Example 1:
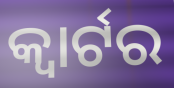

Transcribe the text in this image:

କ୍ଵାର୍ଟର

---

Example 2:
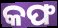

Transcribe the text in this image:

କଫ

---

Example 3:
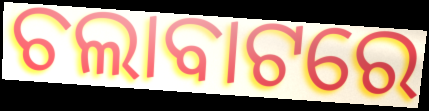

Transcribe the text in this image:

ଚଲାବାଟରେ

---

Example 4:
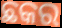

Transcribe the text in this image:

ଛକର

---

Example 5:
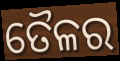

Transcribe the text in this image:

ତୈଳର